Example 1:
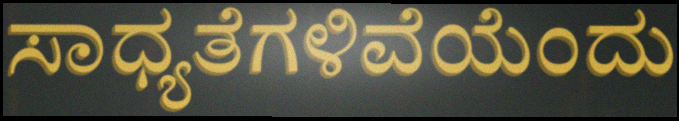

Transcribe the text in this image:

ಸಾಧ್ಯತೆಗಳಿವೆಯೆಂದು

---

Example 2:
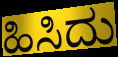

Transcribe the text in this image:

ಹಿಸಿದು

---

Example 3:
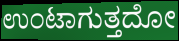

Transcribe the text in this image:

ಉಂಟಾಗುತ್ತದೋ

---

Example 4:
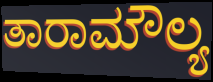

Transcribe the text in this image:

ತಾರಾಮೌಲ್ಯ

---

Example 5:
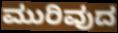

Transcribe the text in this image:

ಮುರಿವುದ